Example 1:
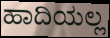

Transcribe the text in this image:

ಹಾದಿಯಲ್ಲ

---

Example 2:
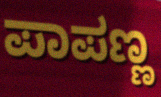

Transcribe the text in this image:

ಪಾಪಣ್ಣ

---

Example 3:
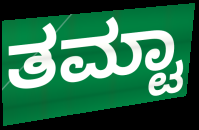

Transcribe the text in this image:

ತಮ್ಟಾ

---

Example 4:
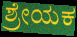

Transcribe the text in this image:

ಶ್ರೇಯಕ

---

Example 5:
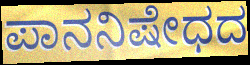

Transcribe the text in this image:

ಪಾನನಿಷೇಧದ